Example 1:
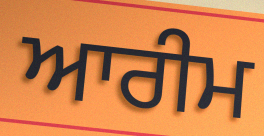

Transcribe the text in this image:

ਆਰੀਮ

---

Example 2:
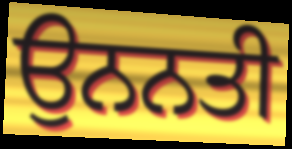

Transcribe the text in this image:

ਉਨਨਤੀ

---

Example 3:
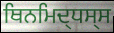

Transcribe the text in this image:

ਥਿਨਮਿਦ੍ਧਸ੍ਸ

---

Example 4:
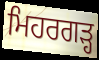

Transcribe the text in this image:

ਮਿਹਰਗੜ੍ਹ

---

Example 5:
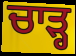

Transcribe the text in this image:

ਚਾਡ਼੍ਹ